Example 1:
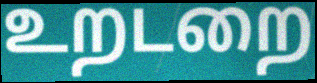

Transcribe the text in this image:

உறடறை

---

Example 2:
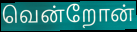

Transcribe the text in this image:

வென்றோன்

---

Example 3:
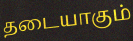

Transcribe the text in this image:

தடையாகும்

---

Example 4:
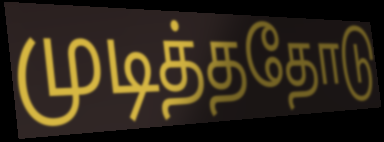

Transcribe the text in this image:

முடித்ததோடு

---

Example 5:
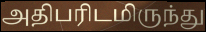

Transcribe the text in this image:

அதிபரிடமிருந்து